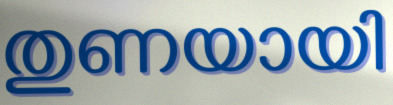
തുണയായി